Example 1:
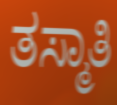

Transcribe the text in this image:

ತಸ್ಮಾತಿ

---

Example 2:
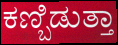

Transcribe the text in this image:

ಕಣ್ಬಿಡುತ್ತಾ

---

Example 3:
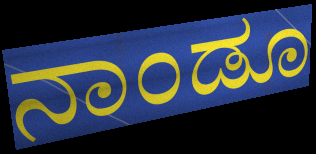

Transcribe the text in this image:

ನಾಂಡೂ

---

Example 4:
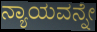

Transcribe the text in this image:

ನ್ಯಾಯವನ್ನೇ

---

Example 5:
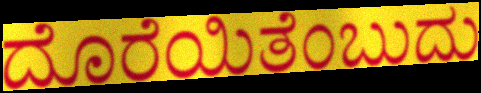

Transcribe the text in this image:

ದೊರೆಯಿತೆಂಬುದು